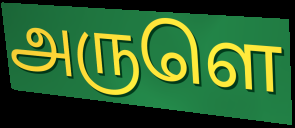
அருளெ